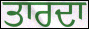
ਤਾਰਦਾ